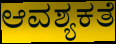
ಆವಶ್ಯಕತೆ